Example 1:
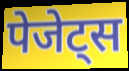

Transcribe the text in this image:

पेजेट्स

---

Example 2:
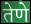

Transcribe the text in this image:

तेणे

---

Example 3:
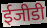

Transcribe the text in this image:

ईजीडी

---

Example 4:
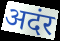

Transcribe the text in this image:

अदंर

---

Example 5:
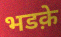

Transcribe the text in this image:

भडक़े